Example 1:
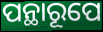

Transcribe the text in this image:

ପନ୍ଥାରୂପେ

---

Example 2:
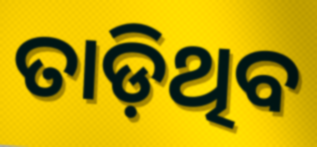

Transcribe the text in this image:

ତାଡ଼ିଥିବ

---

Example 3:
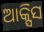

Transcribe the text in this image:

ଆକ୍ସିସ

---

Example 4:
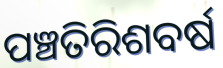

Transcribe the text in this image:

ପଞ୍ଚତିରିଶବର୍ଷ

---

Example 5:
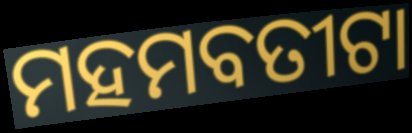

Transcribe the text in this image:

ମହମବତୀଟା